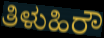
ತಿಳುಹಿರೌ